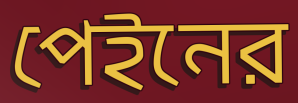
পেইনের